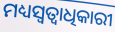
ମଧ୍ୟସ୍ୱତ୍ୱାଧିକାରୀ